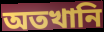
অতখানি